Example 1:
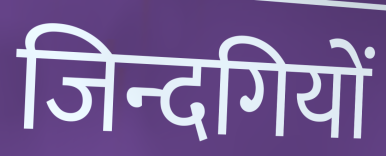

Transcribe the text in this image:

जिन्दगियों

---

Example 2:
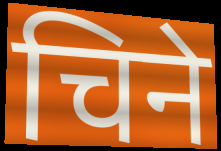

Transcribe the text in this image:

चिने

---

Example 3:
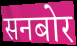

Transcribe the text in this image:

सनबोर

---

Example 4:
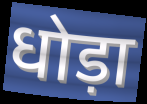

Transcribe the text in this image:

धोड़ा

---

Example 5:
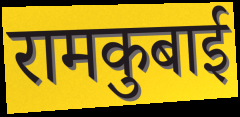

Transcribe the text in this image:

रामकुबाई